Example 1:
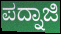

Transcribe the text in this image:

ಪದ್ನಾಜಿ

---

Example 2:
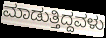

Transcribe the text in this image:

ಮಾಡುತ್ತಿದ್ದವಳು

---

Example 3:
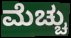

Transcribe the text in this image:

ಮೆಚ್ಚು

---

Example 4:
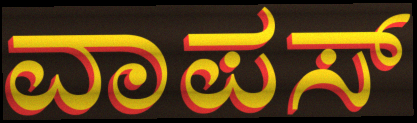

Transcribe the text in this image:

ವಾಪಸ್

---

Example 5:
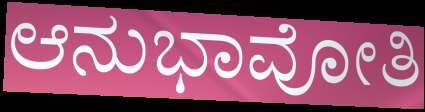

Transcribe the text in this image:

ಆನುಭಾವೋತಿ